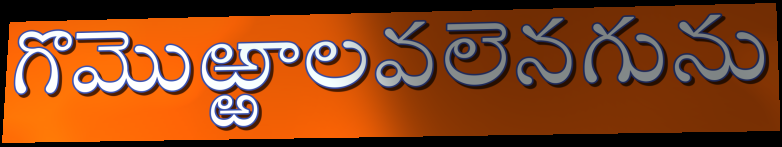
గొమొఱ్ఱాలవలెనగును